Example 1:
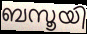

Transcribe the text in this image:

ബസൂയി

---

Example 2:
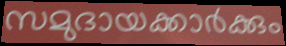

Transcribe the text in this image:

സമുദായക്കാർക്കും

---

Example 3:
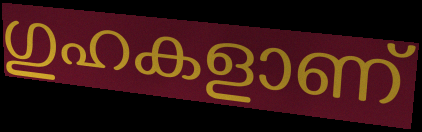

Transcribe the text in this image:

ഗുഹകളാണ്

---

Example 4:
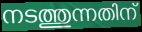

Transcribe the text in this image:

നടത്തുന്നതിന്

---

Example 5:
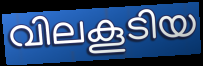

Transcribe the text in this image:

വിലകൂടിയ